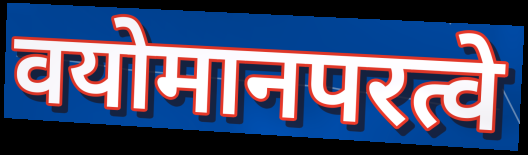
वयोमानपरत्वे